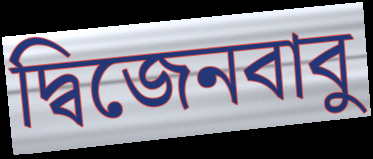
দ্বিজেনবাবু